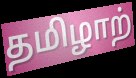
தமிழாற்